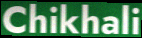
Chikhali